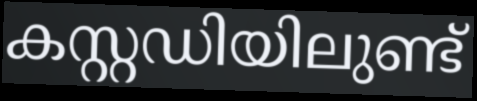
കസ്റ്റഡിയിലുണ്ട്